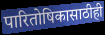
पारितोषिकासाठीही